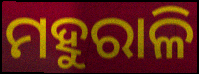
ମହୁରାଳି